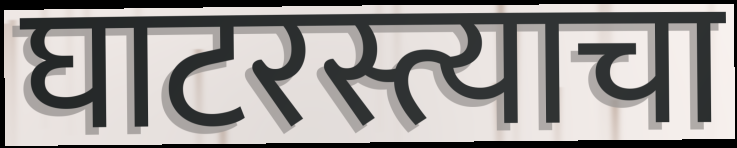
घाटरस्त्याचा